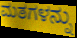
ಮತಗಳನ್ನು